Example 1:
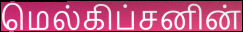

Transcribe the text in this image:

மெல்கிப்சனின்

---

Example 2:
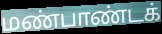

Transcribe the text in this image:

மண்பாண்டக்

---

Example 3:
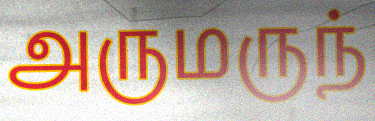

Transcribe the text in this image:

அருமருந்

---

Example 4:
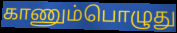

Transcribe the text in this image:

காணும்பொழுது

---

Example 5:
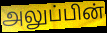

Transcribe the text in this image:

அலுப்பின்